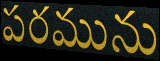
పరమును